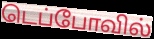
டெப்போவில்